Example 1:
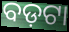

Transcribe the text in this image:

ବଡ଼ଟା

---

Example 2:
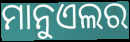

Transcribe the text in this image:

ମାନୁଏଲର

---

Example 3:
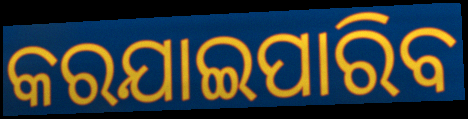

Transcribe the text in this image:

କରଯାଇପାରିବ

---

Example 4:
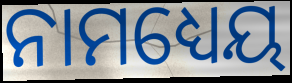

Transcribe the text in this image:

ନାମଧ୍ୟେୟ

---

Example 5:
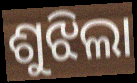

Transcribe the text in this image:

ଶୁଝିଲା